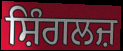
ਸ਼ਿੰਗਲਜ਼